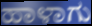
ಹಾಳಾಗು